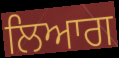
ਲਿਆਗ